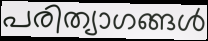
പരിത്യാഗങ്ങൾ